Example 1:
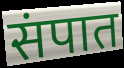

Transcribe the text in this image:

संपात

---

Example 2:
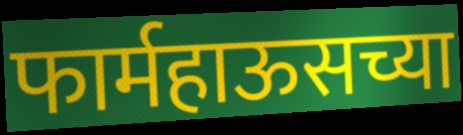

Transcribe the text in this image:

फार्महाऊसच्या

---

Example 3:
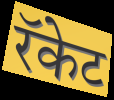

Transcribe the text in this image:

रॅकेट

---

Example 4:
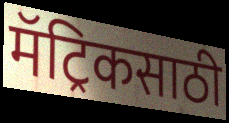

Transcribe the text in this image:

मॅट्रिकसाठी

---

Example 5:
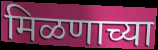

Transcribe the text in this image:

मिळणाच्या